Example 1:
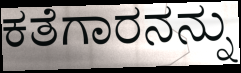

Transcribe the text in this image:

ಕತೆಗಾರನನ್ನು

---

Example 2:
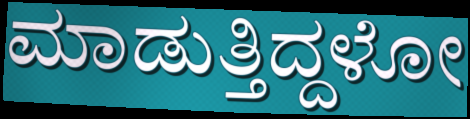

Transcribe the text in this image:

ಮಾಡುತ್ತಿದ್ದಳೋ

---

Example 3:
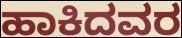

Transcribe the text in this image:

ಹಾಕಿದವರ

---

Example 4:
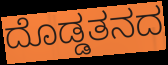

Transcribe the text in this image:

ದೊಡ್ಡತನದ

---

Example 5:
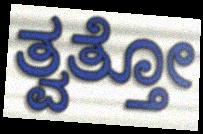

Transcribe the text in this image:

ತ್ವತ್ತೋ